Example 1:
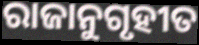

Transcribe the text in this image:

ରାଜାନୁଗୃହୀତ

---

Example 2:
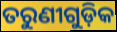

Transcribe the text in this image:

ତରୁଣୀଗୁଡ଼ିକ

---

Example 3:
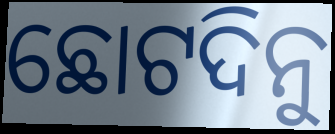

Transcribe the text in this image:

ଛୋଟଦିନୁ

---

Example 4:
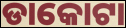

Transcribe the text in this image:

ଡାକୋଟା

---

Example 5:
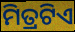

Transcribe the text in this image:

ମିତ୍ରଟିଏ